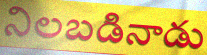
నిలబడినాడు